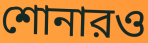
শোনারও